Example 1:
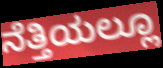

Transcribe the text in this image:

ನೆತ್ತಿಯಲ್ಲೂ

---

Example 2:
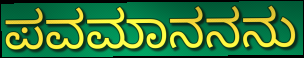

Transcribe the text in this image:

ಪವಮಾನನನು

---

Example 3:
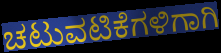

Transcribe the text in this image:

ಚಟುವಟಿಕೆಗಳಿಗಾಗಿ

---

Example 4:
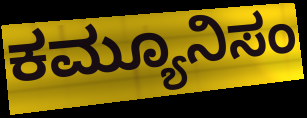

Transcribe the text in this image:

ಕಮ್ಯೂನಿಸಂ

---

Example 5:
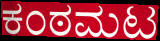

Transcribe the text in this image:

ಕಂಠಮಟ